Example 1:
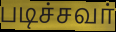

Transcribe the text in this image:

படிச்சவர்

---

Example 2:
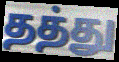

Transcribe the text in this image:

தத்து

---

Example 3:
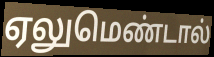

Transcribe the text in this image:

ஏலுமெண்டால்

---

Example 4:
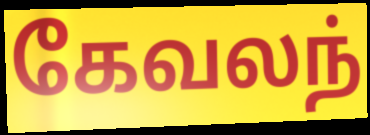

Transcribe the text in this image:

கேவலந்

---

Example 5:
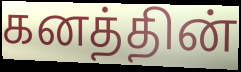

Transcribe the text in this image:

கனத்தின்